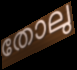
തോലു